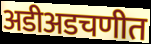
अडीअडचणीत